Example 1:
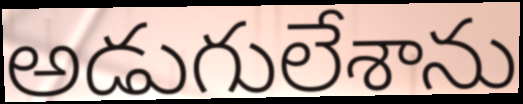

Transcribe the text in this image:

అడుగులేశాను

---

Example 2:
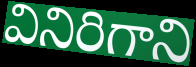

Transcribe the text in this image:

వినిరిగాని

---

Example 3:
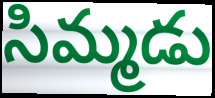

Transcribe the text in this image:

సిమ్మడు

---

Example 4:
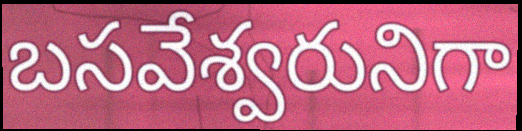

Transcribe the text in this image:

బసవేశ్వరునిగా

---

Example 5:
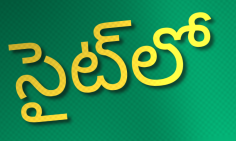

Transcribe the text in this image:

సైట్‌లో